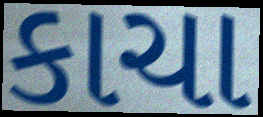
કાચા